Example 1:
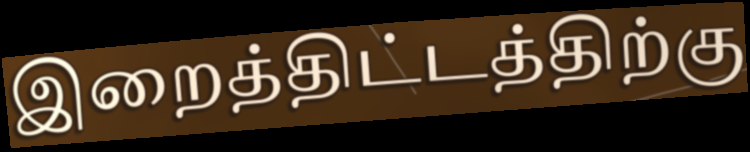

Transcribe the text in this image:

இறைத்திட்டத்திற்கு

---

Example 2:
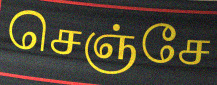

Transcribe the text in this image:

செஞ்சே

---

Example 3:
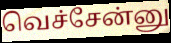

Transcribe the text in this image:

வெச்சேன்னு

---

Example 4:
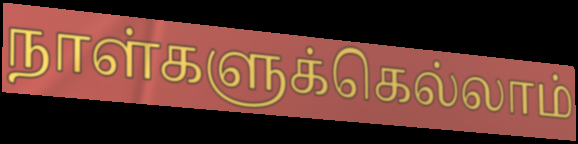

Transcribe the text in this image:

நாள்களுக்கெல்லாம்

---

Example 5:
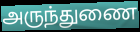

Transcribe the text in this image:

அருந்துணை